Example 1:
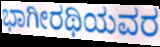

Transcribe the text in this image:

ಭಾಗೀರಥಿಯವರ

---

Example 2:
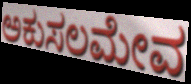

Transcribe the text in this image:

ಅಕುಸಲಮೇವ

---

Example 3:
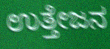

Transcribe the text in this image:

ಉತ್ತೇಜನ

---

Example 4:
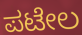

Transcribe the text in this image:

ಪಟೇಲ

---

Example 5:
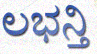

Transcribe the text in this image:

ಲಭನ್ತಿ